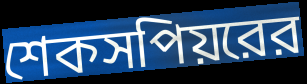
শেকসপিয়রের